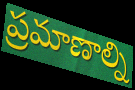
ప్రమాణాల్ని